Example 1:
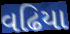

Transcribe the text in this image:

વઢિયા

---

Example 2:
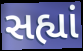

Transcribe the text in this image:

સહ્યાં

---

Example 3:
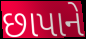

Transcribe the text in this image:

છાપાને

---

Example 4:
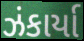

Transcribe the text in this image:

ઝંકાર્યા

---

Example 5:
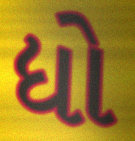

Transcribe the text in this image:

દ્યો